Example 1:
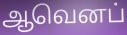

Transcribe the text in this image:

ஆவெனப்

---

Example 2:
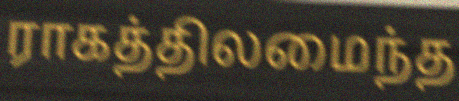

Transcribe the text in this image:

ராகத்திலமைந்த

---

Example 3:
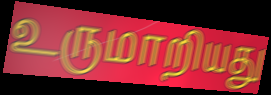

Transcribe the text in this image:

உருமாறியது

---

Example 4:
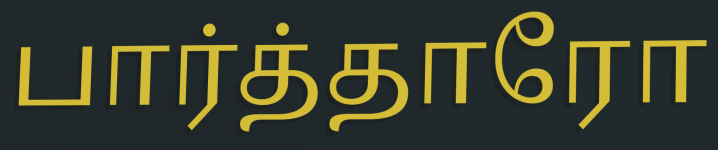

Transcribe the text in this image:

பார்த்தாரோ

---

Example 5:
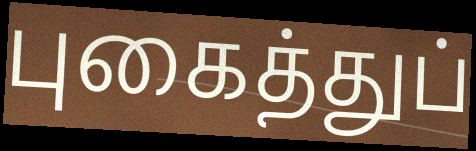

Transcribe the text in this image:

புகைத்துப்